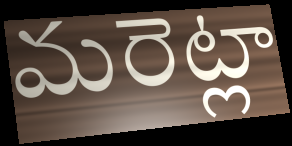
మరెట్లా